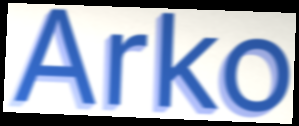
Arko